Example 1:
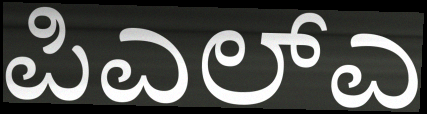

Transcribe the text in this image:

ಪಿಎಲ್ಎ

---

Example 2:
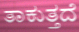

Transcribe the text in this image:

ತಾಕುತ್ತದೆ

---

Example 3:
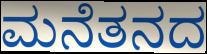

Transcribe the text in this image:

ಮನೆತನದ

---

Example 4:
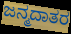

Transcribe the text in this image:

ಜನ್ಮದಾತರ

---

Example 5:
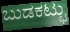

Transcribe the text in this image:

ಬುಡಕಟ್ಟು